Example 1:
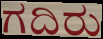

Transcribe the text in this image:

ಗದಿರು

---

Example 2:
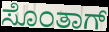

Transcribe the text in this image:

ಸೊಂತಾಗ್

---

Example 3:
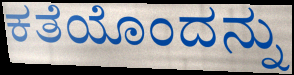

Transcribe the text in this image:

ಕತೆಯೊಂದನ್ನು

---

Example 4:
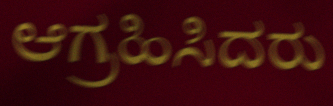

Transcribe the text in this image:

ಆಗ್ರಹಿಸಿದರು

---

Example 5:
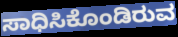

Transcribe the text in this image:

ಸಾಧಿಸಿಕೊಂಡಿರುವ